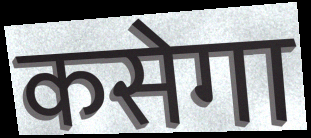
कसेगा